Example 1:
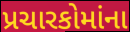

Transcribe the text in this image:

પ્રચારકોમાંના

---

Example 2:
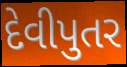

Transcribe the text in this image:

દેવીપુતર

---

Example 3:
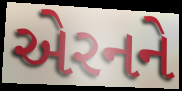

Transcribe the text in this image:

એરનને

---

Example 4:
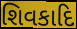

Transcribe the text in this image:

શિવકાદિ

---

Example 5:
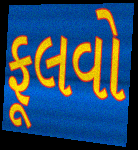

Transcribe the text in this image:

ફૂલવો